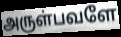
அருள்பவளே